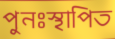
পুনঃস্থাপিত